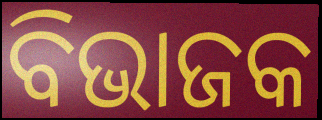
ବିଭାଜକ